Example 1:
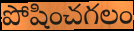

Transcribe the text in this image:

పోషించగలం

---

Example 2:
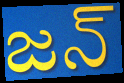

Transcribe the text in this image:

జన్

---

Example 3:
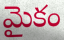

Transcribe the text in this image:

మైకం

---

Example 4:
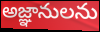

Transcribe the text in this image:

అజ్ఞానులను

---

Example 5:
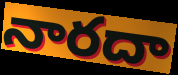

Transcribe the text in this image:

నారదా